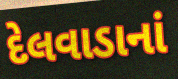
દેલવાડાનાં